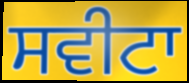
ਸਵੀਟਾ